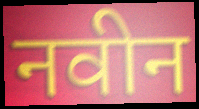
नवीन